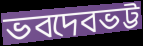
ভবদেবভট্ট